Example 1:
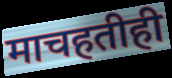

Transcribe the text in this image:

माचहतीही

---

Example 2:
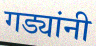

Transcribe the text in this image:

गड्यांनी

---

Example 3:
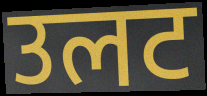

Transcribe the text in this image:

उलट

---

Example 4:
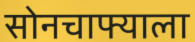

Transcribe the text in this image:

सोनचाफ्याला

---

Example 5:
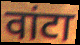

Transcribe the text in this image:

वांटा